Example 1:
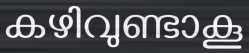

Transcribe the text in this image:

കഴിവുണ്ടാകൂ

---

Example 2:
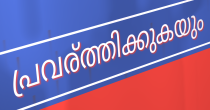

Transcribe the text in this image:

പ്രവര്ത്തിക്കുകയും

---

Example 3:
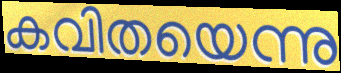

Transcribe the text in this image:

കവിതയെന്നു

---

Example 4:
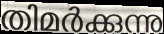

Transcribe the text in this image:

തിമർക്കുന്നു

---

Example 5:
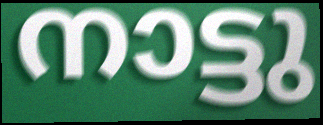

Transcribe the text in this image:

നാട്ടു